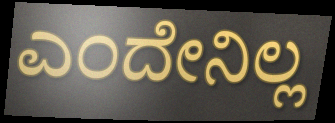
ಎಂದೇನಿಲ್ಲ